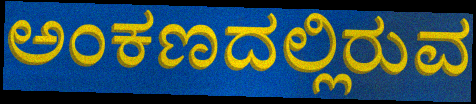
ಅಂಕಣದಲ್ಲಿರುವ